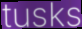
tusks